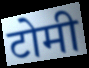
टोमी